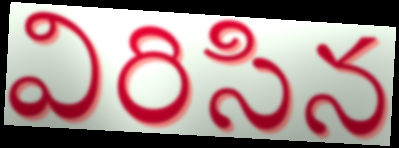
విరిసిన